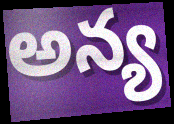
అన్య